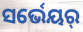
ସର୍ଭେୟର୍